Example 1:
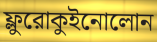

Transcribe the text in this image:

ফ্লুরোকুইনোলোন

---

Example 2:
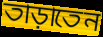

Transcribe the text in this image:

তাড়াতেন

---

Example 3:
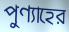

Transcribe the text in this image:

পুণ্যাহের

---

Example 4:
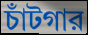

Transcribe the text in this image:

চাঁটগার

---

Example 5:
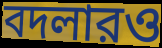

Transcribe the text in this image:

বদলারও